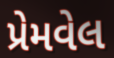
પ્રેમવેલ